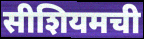
सीशियमची